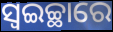
ସ୍ଵଇଚ୍ଛାରେ